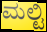
ಮಲ್ಟಿ